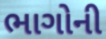
ભાગોની